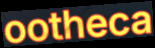
ootheca